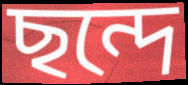
ছন্দে